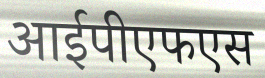
आईपीएफएस